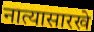
नात्यासारखे